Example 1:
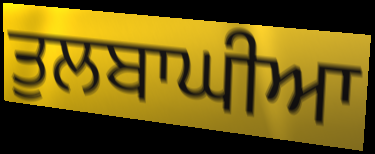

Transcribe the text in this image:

ਤੁਲਬਾਘੀਆ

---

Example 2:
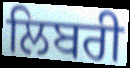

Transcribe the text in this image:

ਲਿਬਰੀ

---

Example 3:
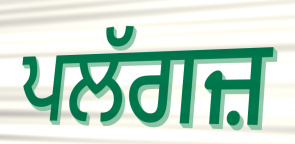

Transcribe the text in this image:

ਪਲੱਗਜ਼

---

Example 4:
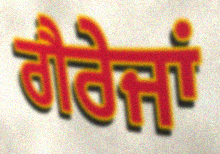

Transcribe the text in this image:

ਗੈਰੇਜਾਂ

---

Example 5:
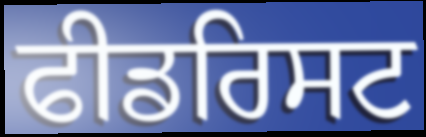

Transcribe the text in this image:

ਫੀਡਰਿਸਟ